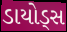
ડાયોડ્સ